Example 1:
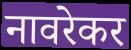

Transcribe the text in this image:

नावरेकर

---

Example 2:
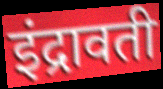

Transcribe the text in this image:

इंद्रावती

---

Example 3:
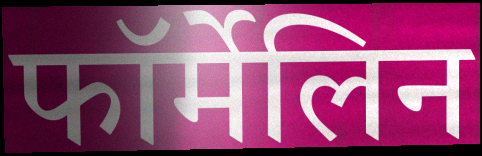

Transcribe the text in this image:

फॉर्मेलिन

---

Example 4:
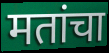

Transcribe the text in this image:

मतांचा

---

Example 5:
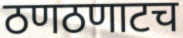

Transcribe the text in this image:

ठणठणाटच